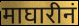
माघारीनं